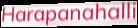
Harapanahalli